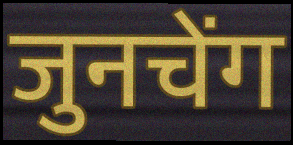
जुनचेंग